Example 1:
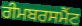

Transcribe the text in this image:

ਰੀਮਬਰਸਮੈਂਟ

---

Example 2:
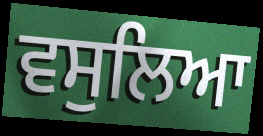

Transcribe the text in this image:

ਵਸੁਲਿਆ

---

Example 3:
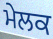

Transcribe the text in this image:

ਮੇਲਕ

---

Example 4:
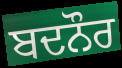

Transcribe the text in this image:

ਬਦਨੌਰ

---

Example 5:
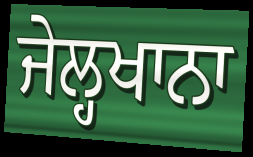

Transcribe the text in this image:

ਜੇਲ੍ਹਖਾਨਾ